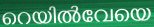
റെയിൽവേയെ